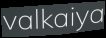
valkaiya